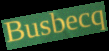
Busbecq